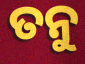
ତନୁ